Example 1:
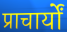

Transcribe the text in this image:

प्राचार्यों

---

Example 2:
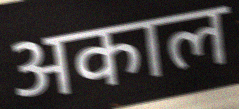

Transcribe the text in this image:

अकाल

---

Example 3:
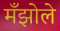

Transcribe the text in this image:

मँझोले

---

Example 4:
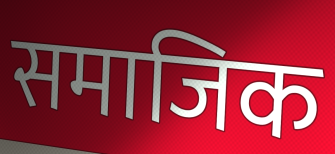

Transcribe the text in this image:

समाजिक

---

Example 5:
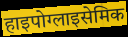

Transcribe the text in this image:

हाइपोग्लाइसेमिक